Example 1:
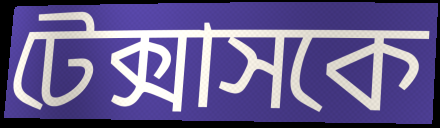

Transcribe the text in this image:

টেক্সাসকে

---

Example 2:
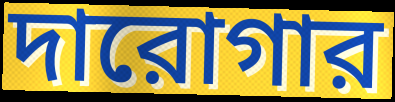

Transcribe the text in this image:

দারোগার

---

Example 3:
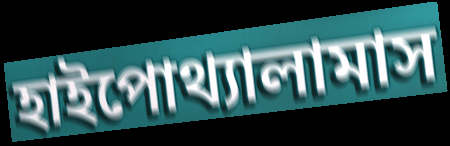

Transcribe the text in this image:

হাইপোথ্যালামাস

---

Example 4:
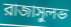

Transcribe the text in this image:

রাজাসুলভ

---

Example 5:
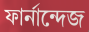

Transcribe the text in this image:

ফার্নান্দেজ